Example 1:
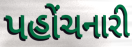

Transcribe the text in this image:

પહોંચનારી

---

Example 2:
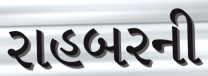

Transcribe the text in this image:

રાહબરની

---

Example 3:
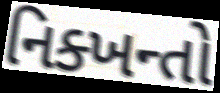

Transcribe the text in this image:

નિક્ખન્તો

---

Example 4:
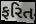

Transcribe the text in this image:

ફરિત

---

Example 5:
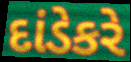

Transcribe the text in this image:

દાંડેકરે